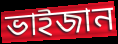
ভাইজান